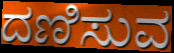
ದಣಿಸುವ